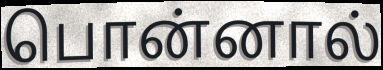
பொன்னால்